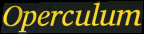
Operculum